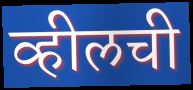
व्हीलची